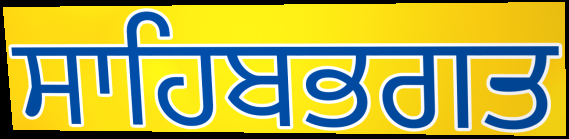
ਸਾਹਿਬਭਗਤ